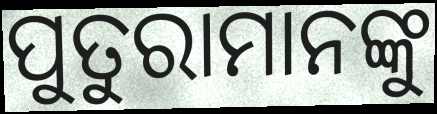
ପୁତୁରାମାନଙ୍କୁ